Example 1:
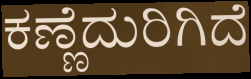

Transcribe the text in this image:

ಕಣ್ಣೆದುರಿಗಿದೆ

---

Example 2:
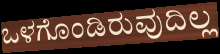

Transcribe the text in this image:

ಒಳಗೊಂಡಿರುವುದಿಲ್ಲ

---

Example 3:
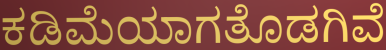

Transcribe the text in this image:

ಕಡಿಮೆಯಾಗತೊಡಗಿವೆ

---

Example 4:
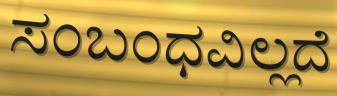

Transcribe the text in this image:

ಸಂಬಂಧವಿಲ್ಲದೆ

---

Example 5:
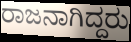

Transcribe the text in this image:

ರಾಜನಾಗಿದ್ದರು